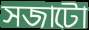
সজাটো